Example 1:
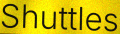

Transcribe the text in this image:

Shuttles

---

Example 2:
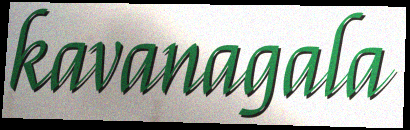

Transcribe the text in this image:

kavanagala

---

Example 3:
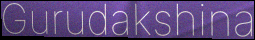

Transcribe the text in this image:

Gurudakshina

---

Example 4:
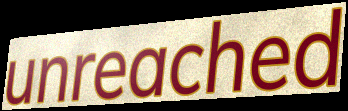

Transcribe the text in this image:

unreached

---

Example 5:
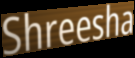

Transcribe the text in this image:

Shreesha